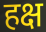
हक्ष